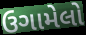
ઉગામેલો